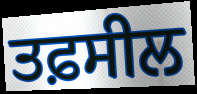
ਤਫ਼ਸੀਲ